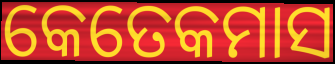
କେତେକମାସ